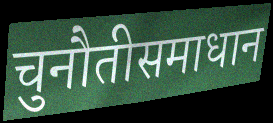
चुनौतीसमाधान